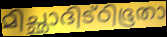
മിച്ഛാദിട്ഠിഭൂതാ